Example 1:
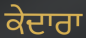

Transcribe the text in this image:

ਕੇਦਾਰਾ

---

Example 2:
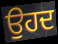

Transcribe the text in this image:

ਉਹਦ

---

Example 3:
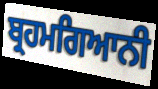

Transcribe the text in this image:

ਬ੍ਰਹਮਗਿਆਨੀ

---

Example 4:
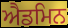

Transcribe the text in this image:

ਐਡਮਿਨ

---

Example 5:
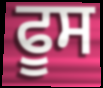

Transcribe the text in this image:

ਫੂਸ